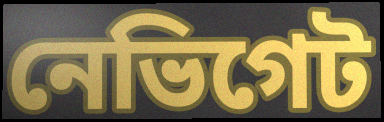
নেভিগেট